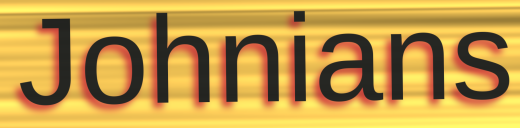
Johnians